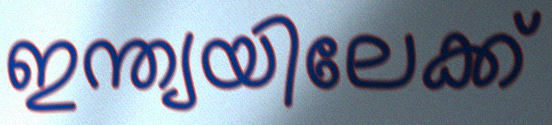
ഇന്ത്യയിലേക്ക്